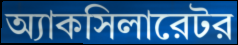
অ্যাকসিলারেটর